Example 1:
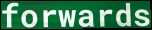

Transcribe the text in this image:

forwards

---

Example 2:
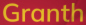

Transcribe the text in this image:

Granth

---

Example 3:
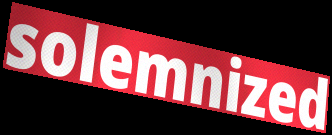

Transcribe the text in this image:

solemnized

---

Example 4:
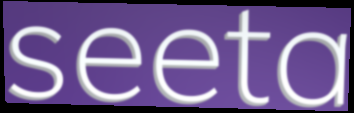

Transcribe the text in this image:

seeta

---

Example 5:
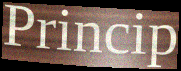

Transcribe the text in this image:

Princip